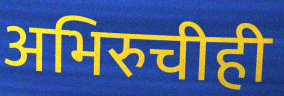
अभिरुचीही